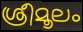
ശ്രീമൂലം